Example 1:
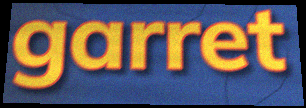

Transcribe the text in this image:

garret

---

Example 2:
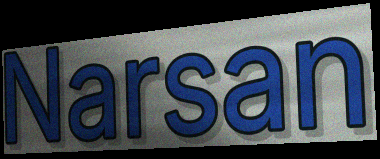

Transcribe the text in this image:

Narsan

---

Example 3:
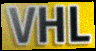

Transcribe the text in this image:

VHL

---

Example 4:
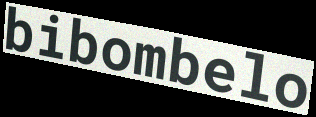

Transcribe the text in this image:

bibombelo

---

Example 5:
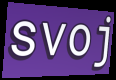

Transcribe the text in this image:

svoj